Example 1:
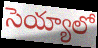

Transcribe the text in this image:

సెయ్యాలో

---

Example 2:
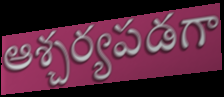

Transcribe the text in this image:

ఆశ్చర్యపడగా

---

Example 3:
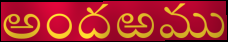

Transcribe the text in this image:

అందఱము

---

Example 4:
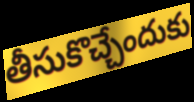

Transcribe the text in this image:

తీసుకొచ్చేందుకు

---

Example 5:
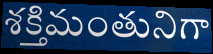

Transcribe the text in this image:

శక్తిమంతునిగా